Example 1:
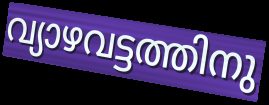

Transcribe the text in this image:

വ്യാഴവട്ടത്തിനു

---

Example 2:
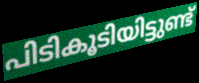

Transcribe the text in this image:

പിടികൂടിയിട്ടുണ്ട്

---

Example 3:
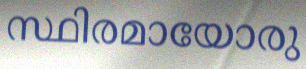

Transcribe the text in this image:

സ്ഥിരമായോരു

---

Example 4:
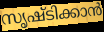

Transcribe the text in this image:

സൃഷ്ടിക്കാൻ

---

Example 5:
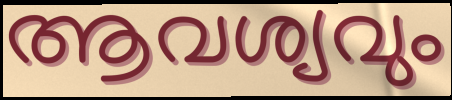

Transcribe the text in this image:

ആവശ്യവും